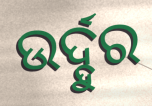
ଉର୍ଦ୍ଦୁର